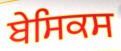
ਬੇਸਿਕਸ